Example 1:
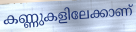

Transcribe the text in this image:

കണ്ണുകളിലേക്കാണ്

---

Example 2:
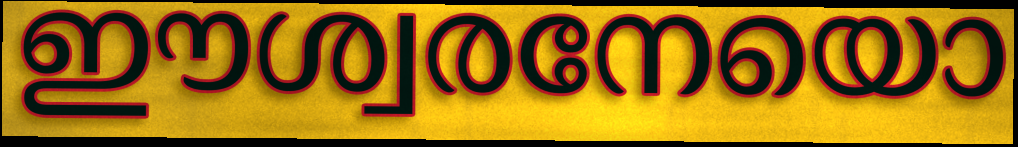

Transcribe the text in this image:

ഈശ്വരനേയൊ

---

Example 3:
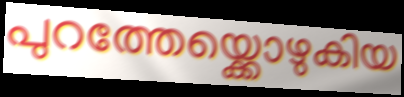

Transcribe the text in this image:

പുറത്തേയ്ക്കൊഴുകിയ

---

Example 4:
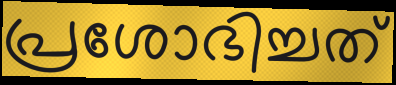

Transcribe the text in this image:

പ്രശോഭിച്ചത്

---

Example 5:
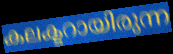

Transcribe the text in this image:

കലക്ടറായിരുന്ന